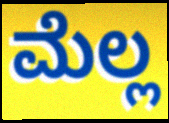
ಮೆಲ್ಲ